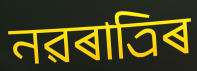
নৱৰাত্ৰিৰ